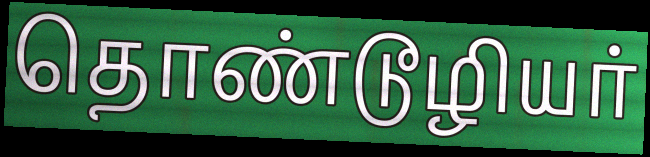
தொண்டூழியர்